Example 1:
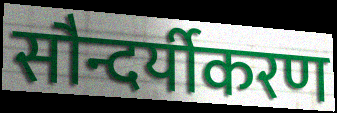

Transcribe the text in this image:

सौन्दर्यीकरण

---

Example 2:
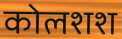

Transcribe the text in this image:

कोलशश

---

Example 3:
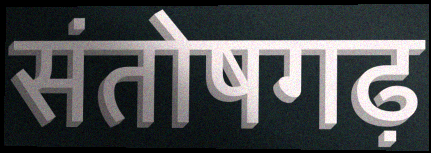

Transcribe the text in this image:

संतोषगढ़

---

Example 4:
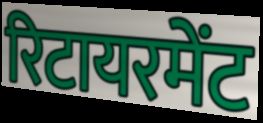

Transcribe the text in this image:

रिटायरमेंट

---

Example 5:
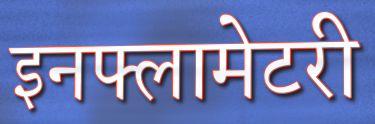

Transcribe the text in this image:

इनफ्लामेटरी